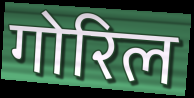
गोरिल